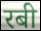
रबी